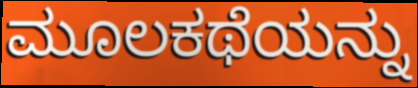
ಮೂಲಕಥೆಯನ್ನು